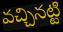
వచ్చినట్టి